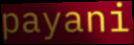
payani